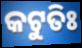
କଟୁତିଃ